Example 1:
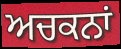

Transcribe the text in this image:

ਅਚਕਨਾਂ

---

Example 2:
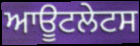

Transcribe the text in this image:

ਆਊਟਲੇਟਸ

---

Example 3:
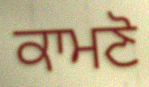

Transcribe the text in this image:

ਕਾਮਣੋ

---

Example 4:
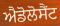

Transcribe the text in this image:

ਐਡੋਲੋਸੈਂਟ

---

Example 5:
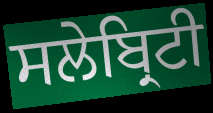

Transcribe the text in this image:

ਸਲੇਬ੍ਰਿਟੀ